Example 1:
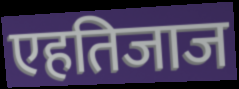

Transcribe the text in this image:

एहतिजाज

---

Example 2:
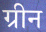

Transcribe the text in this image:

ग्रीन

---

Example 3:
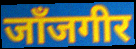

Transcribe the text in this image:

जाँजगीर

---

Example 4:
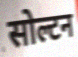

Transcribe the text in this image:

सोल्टन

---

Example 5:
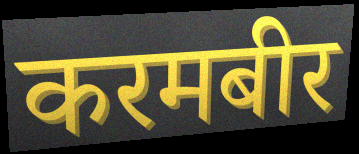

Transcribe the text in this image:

करमबीर